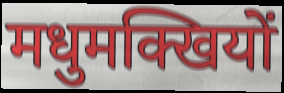
मधुमक्खियों